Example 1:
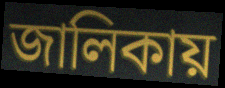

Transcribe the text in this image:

জালিকায়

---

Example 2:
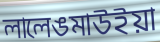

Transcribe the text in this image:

লালেঙমাউইয়া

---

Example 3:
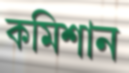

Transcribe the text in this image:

কমিশান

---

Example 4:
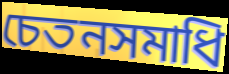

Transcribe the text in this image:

চেতনসমাধি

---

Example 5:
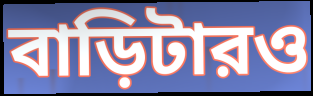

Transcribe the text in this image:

বাড়িটারও